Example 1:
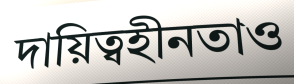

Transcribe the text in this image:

দায়িত্বহীনতাও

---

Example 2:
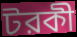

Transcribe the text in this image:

টরকী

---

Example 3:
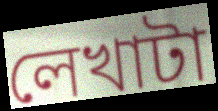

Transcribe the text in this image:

লেখাটা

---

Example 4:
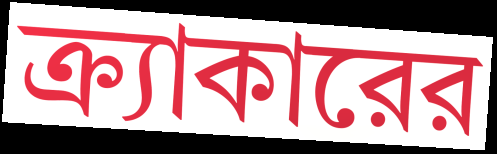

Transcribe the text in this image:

ক্র্যাকারের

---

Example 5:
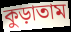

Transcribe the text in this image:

কুড়াতাম